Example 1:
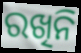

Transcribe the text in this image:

ରଖିନି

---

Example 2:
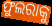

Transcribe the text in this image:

ଫୁଲରାକୁ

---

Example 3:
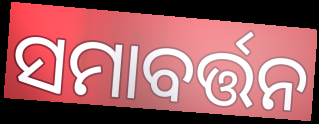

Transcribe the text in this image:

ସମାବର୍ତ୍ତନ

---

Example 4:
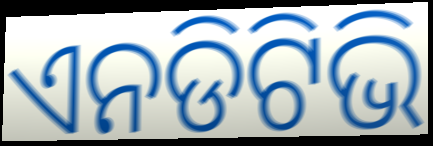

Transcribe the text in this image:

ଏନଡିଟିଭି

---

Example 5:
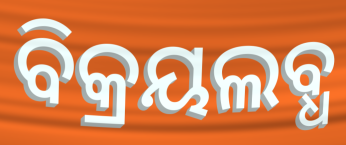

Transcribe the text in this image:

ବିକ୍ରୟଲବ୍ଧ